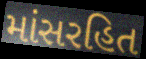
માંસરહિત